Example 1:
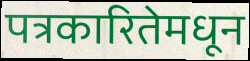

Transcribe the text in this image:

पत्रकारितेमधून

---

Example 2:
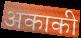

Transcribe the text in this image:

अकाकी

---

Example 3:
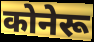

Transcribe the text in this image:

कोनेरू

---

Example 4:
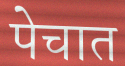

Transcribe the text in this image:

पेचात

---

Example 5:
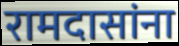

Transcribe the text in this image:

रामदासांना